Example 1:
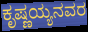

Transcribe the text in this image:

ಕೃಷ್ಣಯ್ಯನವರ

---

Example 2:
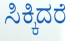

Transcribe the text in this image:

ಸಿಕ್ಕಿದರೆ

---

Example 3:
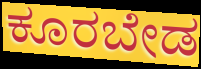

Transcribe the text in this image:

ಕೂರಬೇಡ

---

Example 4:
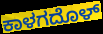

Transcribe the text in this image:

ಕಾಳಗದೊಳ್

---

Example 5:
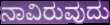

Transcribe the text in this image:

ನಾವಿರುವುದು